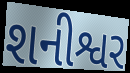
શનીશ્વર